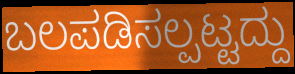
ಬಲಪಡಿಸಲ್ಪಟ್ಟದ್ದು